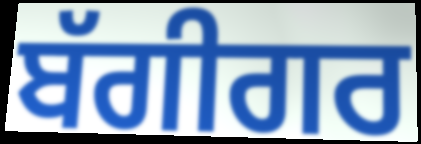
ਬੱਗੀਗਰ